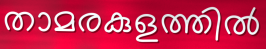
താമരകുളത്തിൽ